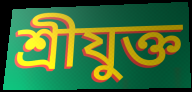
শ্রীযুক্ত